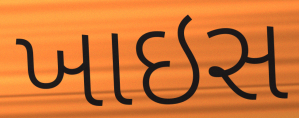
ખાઇસ